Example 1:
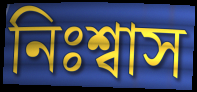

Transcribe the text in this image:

নিঃশ্বাস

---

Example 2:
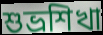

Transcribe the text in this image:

শুভ্রশিখা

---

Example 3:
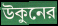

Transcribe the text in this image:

উকুনের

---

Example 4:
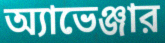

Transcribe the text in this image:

অ্যাভেঞ্জার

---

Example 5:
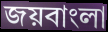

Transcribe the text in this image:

জয়বাংলা